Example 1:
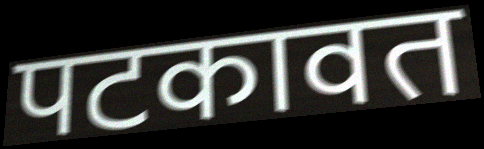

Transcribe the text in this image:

पटकावत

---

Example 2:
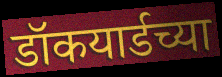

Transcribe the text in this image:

डॉकयार्डच्या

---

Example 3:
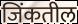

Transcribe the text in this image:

जिंकतील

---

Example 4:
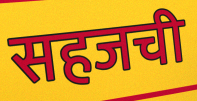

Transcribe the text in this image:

सहजची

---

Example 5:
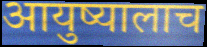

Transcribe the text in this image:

आयुष्यालाच